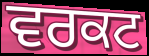
ਵਰਕਟ